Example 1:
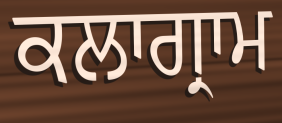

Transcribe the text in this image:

ਕਲਾਗ੍ਰਾਮ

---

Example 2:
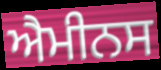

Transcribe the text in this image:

ਐਮੀਨਸ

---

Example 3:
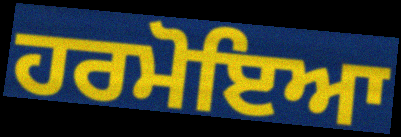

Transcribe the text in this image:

ਹਰਮੋਇਆ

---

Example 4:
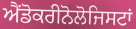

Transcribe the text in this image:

ਐਂਡੋਕਰੀਨੋਲੋਜਿਸਟਾਂ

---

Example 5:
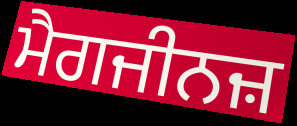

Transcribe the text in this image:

ਮੈਗਜੀਨਜ਼